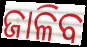
ଜାଳିବ